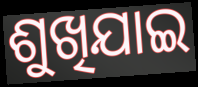
ଶୁଖିଯାଇ